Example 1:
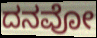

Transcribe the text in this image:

ದನವೋ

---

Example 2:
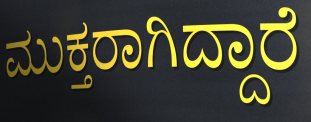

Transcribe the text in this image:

ಮುಕ್ತರಾಗಿದ್ದಾರೆ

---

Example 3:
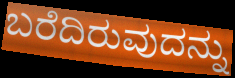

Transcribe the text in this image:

ಬರೆದಿರುವುದನ್ನು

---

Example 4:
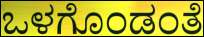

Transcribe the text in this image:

ಒಳಗೊಂಡಂತೆ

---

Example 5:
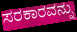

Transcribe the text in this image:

ಸರಕಾರವನ್ನು